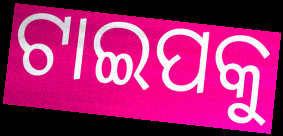
ଟାଇପକୁ